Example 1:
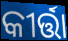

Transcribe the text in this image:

କୀର୍ତ୍ତା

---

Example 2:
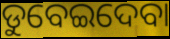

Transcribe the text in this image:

ଡୁବେଇଦେବା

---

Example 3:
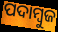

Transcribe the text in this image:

ପଦାମ୍ବୁଜ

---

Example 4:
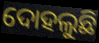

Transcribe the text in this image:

ଦୋହଲୁଛି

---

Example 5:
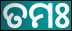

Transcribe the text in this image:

ତମଃ